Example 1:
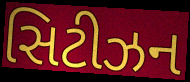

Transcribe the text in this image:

સિટીઝન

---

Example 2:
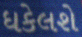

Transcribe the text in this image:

ધકેલશે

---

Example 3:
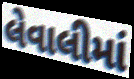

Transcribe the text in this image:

લેવાલીમાં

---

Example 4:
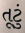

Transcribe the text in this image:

તૂટું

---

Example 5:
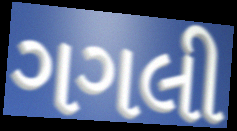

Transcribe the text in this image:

ગગલી